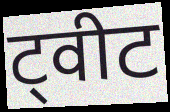
ट्‍वीट